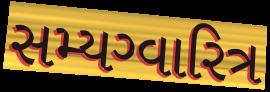
સમ્યગ્વારિત્ર